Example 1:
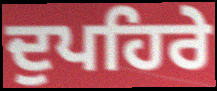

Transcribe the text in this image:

ਦੁਪਹਿਰੇ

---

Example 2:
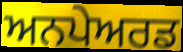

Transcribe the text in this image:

ਅਨਪੇਅਰਡ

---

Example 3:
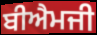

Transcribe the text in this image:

ਬੀਐਮਜੀ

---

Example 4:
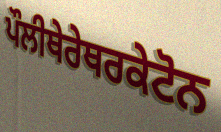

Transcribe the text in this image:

ਪੌਲੀਥੇਰੇਥਰਕੇਟੋਨ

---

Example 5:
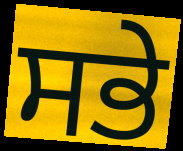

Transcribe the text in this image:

ਸਭੇ